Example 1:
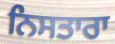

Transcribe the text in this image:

ਨਿਸਤਾਰਾ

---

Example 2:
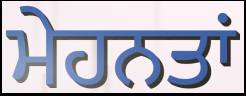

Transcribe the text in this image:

ਮੇਹਨਤਾਂ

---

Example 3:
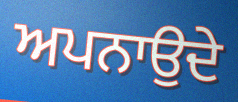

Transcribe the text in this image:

ਅਪਨਾਉਦੇ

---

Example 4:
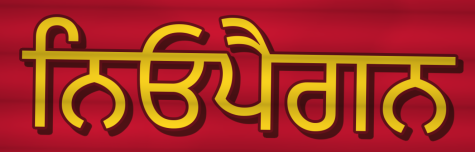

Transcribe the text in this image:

ਨਿਓਪੈਗਨ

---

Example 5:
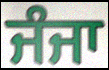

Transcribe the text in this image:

ਜੰਜਾ